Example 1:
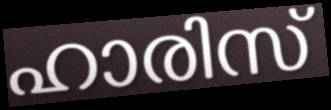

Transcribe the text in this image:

ഹാരിസ്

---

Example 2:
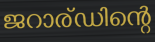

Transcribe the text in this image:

ജറാര്ഡിന്റെ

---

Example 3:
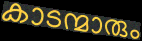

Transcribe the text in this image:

കാടന്മാരും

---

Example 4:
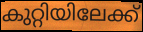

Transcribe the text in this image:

കുറ്റിയിലേക്ക്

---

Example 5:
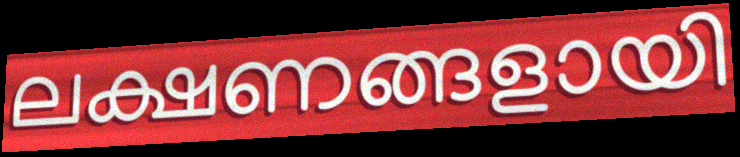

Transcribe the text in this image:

ലക്ഷണങ്ങളായി